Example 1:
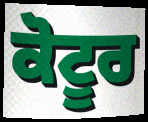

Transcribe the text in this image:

ਕੋਟੂਰ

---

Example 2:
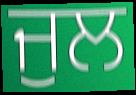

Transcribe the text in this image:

ਜੁਲ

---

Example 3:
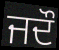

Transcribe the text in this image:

ਜਦੌ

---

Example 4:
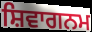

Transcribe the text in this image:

ਸ਼ਿਵਾਗਨਮ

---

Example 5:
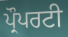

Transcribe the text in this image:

ਪ੍ਰੌਪਰਟੀ